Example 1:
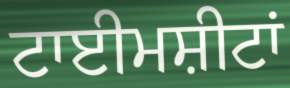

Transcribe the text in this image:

ਟਾਈਮਸ਼ੀਟਾਂ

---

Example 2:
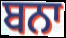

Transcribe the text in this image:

ਬਨਾ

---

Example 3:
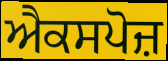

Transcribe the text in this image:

ਐਕਸਪੋਜ਼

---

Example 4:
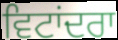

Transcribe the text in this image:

ਵਿਟਾਂਦਰਾ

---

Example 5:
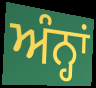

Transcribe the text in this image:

ਅੰਨ੍ਹਾਂ